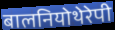
बालनियोथेरेपी